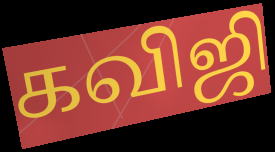
கவிஜி